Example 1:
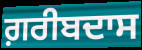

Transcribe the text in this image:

ਗ਼ਰੀਬਦਾਸ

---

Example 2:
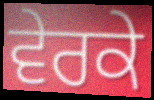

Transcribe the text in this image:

ਵੇਰਕੇ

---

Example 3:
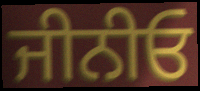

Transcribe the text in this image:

ਜੀਨੀਓ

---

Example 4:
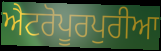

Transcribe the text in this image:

ਐਟਰੋਪੂਰਪੁਰੀਆ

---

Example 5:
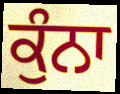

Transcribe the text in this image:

ਕੁੰਨਾ